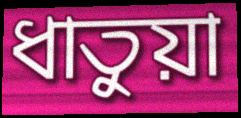
ধাতুয়া